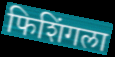
फिशिंगला